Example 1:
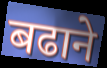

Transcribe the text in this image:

बढाने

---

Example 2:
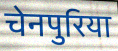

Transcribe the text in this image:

चेनपुरिया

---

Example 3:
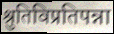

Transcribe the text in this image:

श्रुतिविप्रतिपन्ना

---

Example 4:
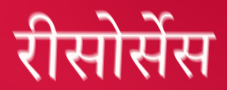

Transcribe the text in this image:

रीसोर्सेस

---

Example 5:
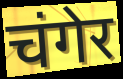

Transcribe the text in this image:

चंगेर